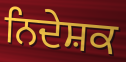
ਨਿਦੇਸ਼ਕ